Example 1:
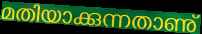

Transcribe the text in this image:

മതിയാക്കുന്നതാണു്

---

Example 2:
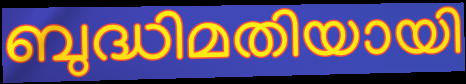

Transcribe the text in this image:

ബുദ്ധിമതിയായി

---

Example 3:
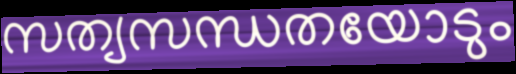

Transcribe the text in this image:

സത്യസന്ധതയോടും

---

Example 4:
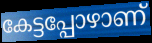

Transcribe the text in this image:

കേട്ടപ്പോഴാണ്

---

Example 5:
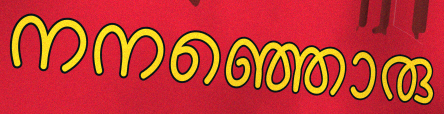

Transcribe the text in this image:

നനഞ്ഞൊരു